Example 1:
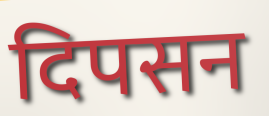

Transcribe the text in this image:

दिपसन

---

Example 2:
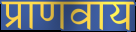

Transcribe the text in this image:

प्राणवाय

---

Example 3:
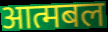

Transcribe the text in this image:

आत्मबल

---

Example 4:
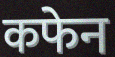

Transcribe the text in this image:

कफेन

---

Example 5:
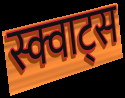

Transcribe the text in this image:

स्क्वाट्स